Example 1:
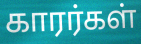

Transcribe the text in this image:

காரர்கள்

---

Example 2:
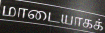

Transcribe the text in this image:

மாடையாகக்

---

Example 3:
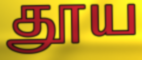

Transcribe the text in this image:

தூய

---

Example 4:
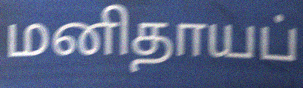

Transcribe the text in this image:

மனிதாயப்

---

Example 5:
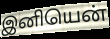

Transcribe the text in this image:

இனியென்